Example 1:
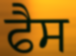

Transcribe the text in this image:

ਫੈਸ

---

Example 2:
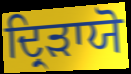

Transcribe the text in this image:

ਦ੍ਰਿੜਾਯੋ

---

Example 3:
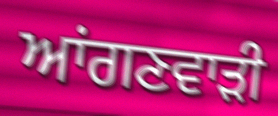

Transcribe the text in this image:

ਆਂਗਣਵਾੜੀ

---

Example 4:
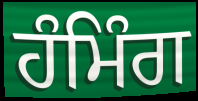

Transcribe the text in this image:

ਹੰਮਿੰਗ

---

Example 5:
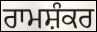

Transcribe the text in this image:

ਰਾਮਸ਼ੰਕਰ